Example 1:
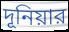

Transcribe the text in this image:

দূনিয়ার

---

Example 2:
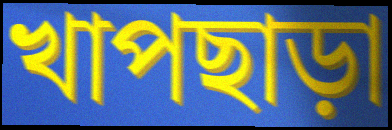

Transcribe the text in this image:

খাপছাড়া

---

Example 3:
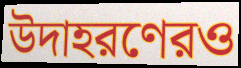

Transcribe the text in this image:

উদাহরণেরও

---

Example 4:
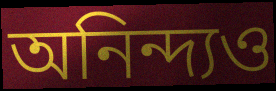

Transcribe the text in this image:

অনিন্দ্যও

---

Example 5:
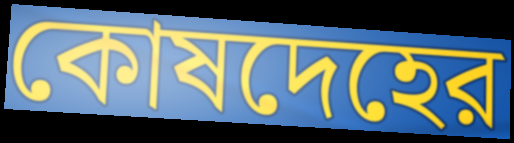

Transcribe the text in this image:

কোষদেহের